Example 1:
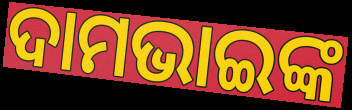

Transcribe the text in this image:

ଦାମଭାଇଙ୍କ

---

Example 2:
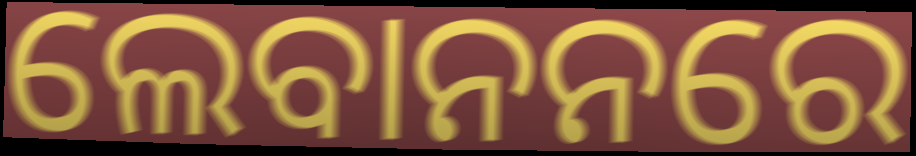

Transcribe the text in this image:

ଲେବାନନରେ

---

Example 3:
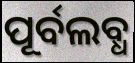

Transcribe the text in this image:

ପୂର୍ବଲବ୍ଧ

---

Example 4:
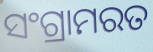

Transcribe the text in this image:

ସଂଗ୍ରାମରତ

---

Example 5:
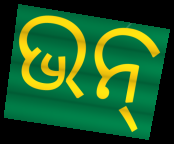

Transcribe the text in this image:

ଭନ୍